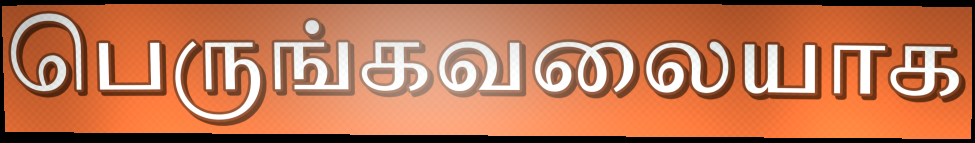
பெருங்கவலையாக